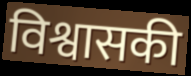
विश्वासकी